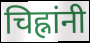
चिह्नांनी